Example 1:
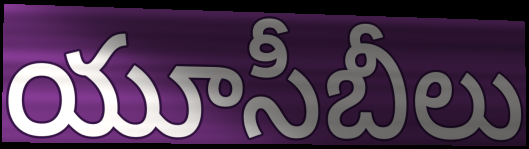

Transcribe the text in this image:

యూసీబీలు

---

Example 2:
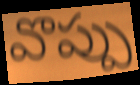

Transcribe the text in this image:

వొప్పు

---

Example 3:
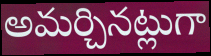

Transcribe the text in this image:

అమర్చినట్లుగా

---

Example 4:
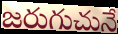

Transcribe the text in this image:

జరుగుచునే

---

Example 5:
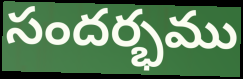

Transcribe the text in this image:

సందర్భము